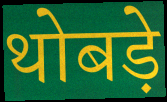
थोबड़े